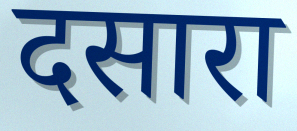
दसारा